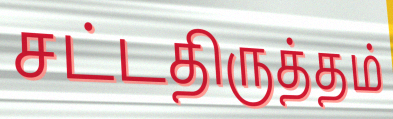
சட்டதிருத்தம்